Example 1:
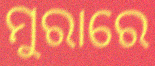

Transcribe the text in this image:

ମୁରାରେ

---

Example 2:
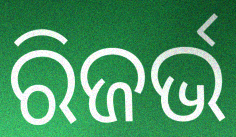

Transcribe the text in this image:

ରିଜର୍ଭ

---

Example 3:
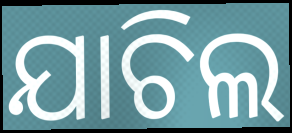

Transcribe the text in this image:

ଯାଚିଲ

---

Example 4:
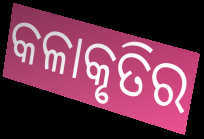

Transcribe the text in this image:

କଳାକୃତିର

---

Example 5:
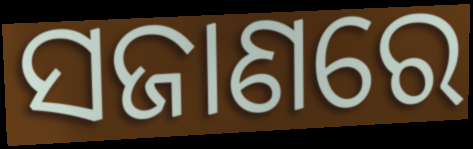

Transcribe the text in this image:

ସଜାଣରେ